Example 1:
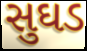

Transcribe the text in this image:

સુઘડ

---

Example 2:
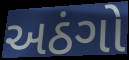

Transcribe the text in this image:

અઠંગો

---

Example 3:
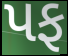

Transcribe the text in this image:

પફ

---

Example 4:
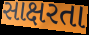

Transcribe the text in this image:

સાક્ષરતા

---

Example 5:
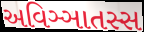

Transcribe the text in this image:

અવિઞ્ઞાતસ્સ